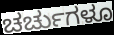
ಚರ್ಚುಗಳೂ